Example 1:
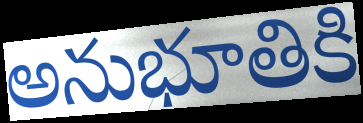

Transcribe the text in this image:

అనుభూతికి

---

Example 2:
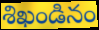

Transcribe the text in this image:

శిఖండినం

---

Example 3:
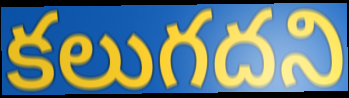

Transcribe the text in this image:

కలుగదని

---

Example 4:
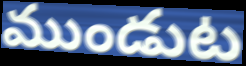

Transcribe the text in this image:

ముండుట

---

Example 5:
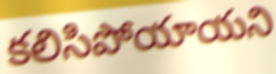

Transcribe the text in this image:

కలిసిపోయాయని